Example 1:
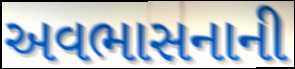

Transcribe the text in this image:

અવભાસનાની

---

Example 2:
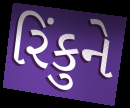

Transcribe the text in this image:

રિંકુને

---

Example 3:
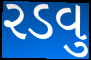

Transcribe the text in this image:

રડવુ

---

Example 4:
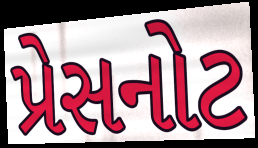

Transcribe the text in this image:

પ્રેસનોટ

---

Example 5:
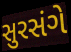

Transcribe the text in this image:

સુરસંગે